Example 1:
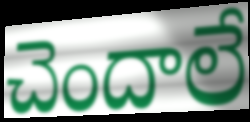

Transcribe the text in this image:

చెందాలే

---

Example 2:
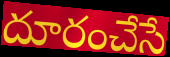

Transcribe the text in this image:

దూరంచేసే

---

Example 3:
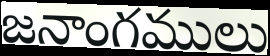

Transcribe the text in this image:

జనాంగములు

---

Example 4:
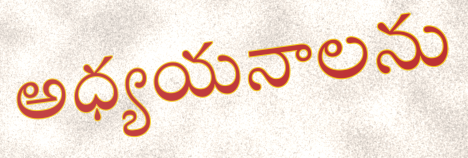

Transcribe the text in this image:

అధ్యయనాలను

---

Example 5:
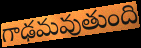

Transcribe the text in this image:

గాఢమవుతుంది